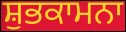
ਸ਼ੁਭਕਾਮਨਾ